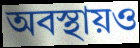
অবস্থায়ও